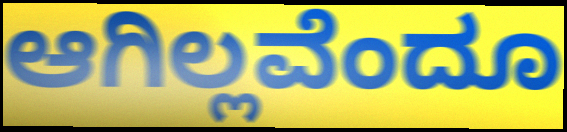
ಆಗಿಲ್ಲವೆಂದೂ